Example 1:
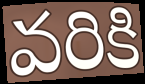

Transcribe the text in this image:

వరికి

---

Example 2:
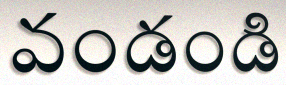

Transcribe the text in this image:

వండండి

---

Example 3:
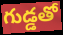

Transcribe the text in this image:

గుడ్డతో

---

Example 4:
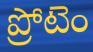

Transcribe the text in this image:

ప్రోటెం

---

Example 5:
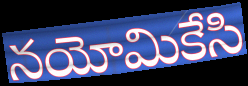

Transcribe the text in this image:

నయోమికేసి